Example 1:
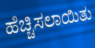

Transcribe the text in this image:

ಹೆಚ್ಚಿಸಲಾಯಿತು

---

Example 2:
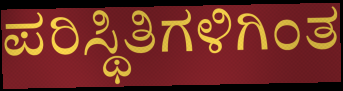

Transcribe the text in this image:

ಪರಿಸ್ಥಿತಿಗಳಿಗಿಂತ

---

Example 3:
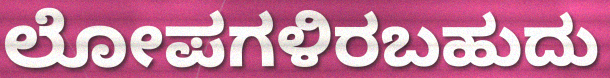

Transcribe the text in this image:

ಲೋಪಗಳಿರಬಹುದು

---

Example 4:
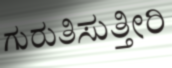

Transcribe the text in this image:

ಗುರುತಿಸುತ್ತೀರಿ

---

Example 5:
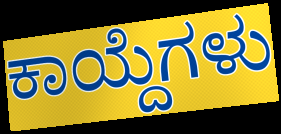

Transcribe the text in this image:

ಕಾಯ್ದೆಗಳು